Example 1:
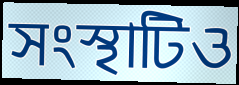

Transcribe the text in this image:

সংস্থাটিও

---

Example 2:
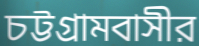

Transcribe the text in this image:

চট্টগ্রামবাসীর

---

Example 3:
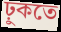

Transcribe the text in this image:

ঢ়ুকতে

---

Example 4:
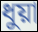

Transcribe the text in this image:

ধুয়া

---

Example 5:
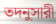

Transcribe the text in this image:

তদনুসারী